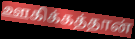
ஊகிக்கத்தான்